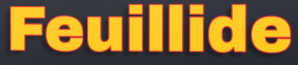
Feuillide